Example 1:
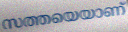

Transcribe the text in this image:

സത്തയെയാണ്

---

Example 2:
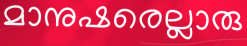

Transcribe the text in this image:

മാനുഷരെല്ലാരു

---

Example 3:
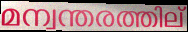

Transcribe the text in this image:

മന്വന്തരത്തില്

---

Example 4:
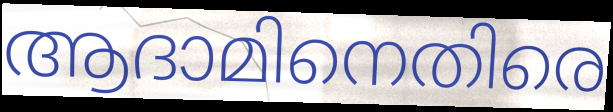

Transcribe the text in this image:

ആദാമിനെതിരെ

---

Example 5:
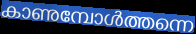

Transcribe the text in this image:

കാണുമ്പോൾത്തന്നെ